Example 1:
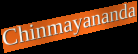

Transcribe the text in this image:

Chinmayananda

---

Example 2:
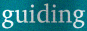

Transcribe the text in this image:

guiding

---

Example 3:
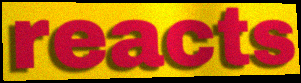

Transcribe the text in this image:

reacts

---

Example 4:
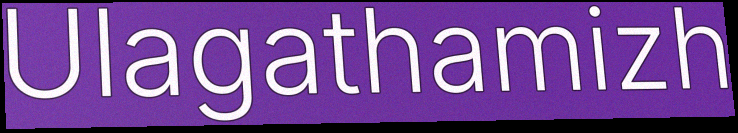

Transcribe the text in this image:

Ulagathamizh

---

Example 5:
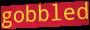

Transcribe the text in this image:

gobbled